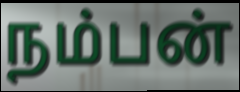
நம்பன்